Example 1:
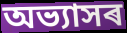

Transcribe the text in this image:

অভ্যাসৰ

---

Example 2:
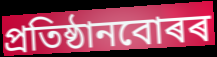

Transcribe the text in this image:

প্ৰতিষ্ঠানবোৰৰ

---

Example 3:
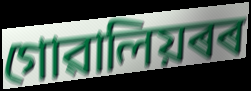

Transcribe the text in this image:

গোৱালিয়ৰৰ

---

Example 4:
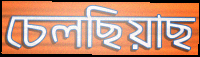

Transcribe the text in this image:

চেলছিয়াছ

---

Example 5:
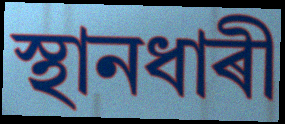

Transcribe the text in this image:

স্থানধাৰী